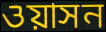
ওয়াসন